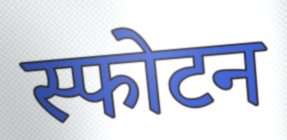
स्फोटन